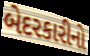
બેદરકારીનો